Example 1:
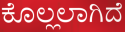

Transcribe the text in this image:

ಕೊಲ್ಲಲಾಗಿದೆ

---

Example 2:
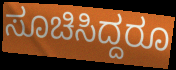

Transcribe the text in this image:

ಸೂಚಿಸಿದ್ದರೂ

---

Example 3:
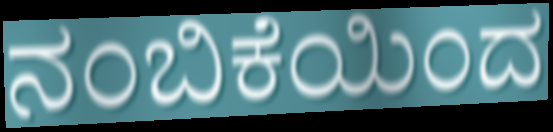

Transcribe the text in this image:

ನಂಬಿಕೆಯಿಂದ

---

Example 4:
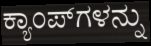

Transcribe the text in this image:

ಕ್ಯಾಂಪ್‍ಗಳನ್ನು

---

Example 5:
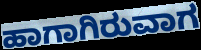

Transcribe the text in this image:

ಹಾಗಾಗಿರುವಾಗ